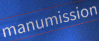
manumission